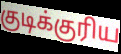
குடிக்குரிய